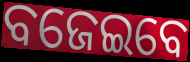
ବଜେଇବେ